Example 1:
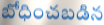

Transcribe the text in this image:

బోధించబడిన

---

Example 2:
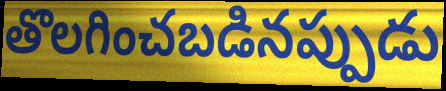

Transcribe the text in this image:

తొలగించబడినప్పుడు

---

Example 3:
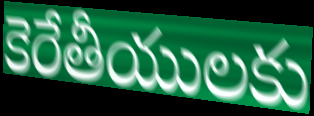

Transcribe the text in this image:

కెరేతీయులకు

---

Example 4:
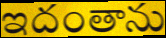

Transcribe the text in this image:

ఇదంతాను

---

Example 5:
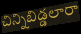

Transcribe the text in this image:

చిన్నిబిడ్డలారా